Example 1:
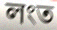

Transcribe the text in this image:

লংত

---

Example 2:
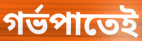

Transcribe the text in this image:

গৰ্ভপাতেই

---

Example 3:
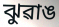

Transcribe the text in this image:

ঝুৱাঙ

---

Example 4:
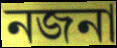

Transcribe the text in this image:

নজনা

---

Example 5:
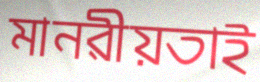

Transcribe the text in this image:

মানৱীয়তাই